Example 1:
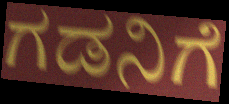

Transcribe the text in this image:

ಗಡನಿಗೆ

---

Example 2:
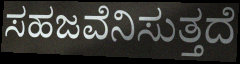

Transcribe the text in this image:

ಸಹಜವೆನಿಸುತ್ತದೆ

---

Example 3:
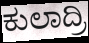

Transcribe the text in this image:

ಕುಲಾದ್ರಿ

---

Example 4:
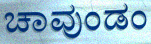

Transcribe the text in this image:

ಚಾವುಂಡಂ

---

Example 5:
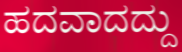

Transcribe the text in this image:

ಹದವಾದದ್ದು